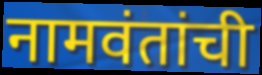
नामवंतांची